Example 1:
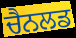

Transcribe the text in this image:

ਚੈਨਲਡ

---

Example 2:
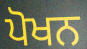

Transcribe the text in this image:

ਪੋਖਨ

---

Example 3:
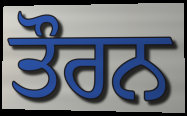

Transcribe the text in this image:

ਤੌਰਨ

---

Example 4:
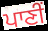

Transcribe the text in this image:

ਪਾਣੀਂ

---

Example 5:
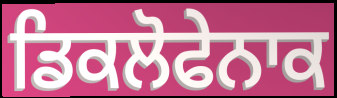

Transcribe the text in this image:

ਡਿਕਲੋਫੇਨਾਕ